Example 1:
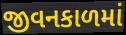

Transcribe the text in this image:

જીવનકાળમાં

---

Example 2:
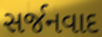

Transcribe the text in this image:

સર્જનવાદ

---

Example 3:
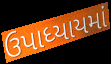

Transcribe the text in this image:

ઉપાધ્યાયમાં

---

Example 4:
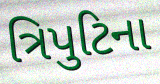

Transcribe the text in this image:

ત્રિપુટિના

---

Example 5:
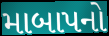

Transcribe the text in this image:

માબાપનો